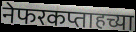
नेफरकप्ताहच्या